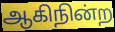
ஆகிநின்ற